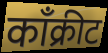
काँक्रीट